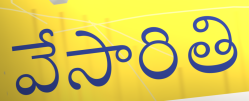
వేసారితి